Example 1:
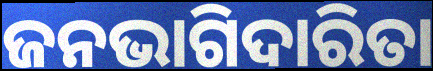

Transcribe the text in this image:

ଜନଭାଗିଦାରିତା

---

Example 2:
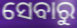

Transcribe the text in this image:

ସେବାରୁ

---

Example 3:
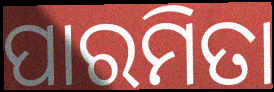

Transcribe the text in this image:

ପାରମିତା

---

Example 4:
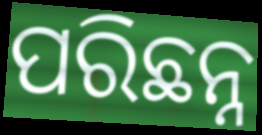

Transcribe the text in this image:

ପରିଛନ୍ନ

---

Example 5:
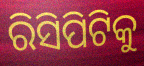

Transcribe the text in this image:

ରିସିପିଟିକୁ